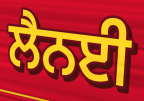
ਲੈਨਈ